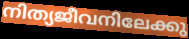
നിത്യജീവനിലേക്കു